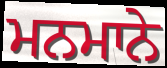
ਮਨਮਾਨੇ